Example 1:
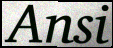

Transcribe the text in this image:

Ansi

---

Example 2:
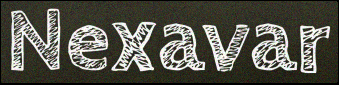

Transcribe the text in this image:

Nexavar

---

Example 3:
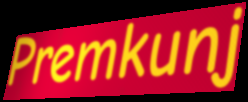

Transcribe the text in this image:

Premkunj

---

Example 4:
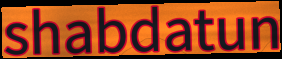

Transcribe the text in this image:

shabdatun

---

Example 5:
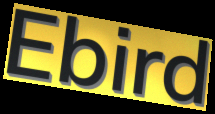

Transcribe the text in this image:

Ebird